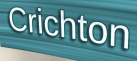
Crichton